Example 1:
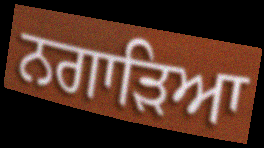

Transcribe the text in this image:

ਨਗਾੜਿਆ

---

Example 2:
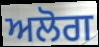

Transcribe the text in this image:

ਅਲੋਗ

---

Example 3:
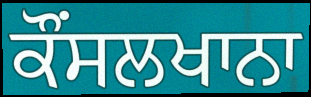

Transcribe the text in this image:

ਕੌਂਸਲਖਾਨਾ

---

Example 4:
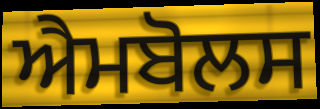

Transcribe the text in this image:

ਐਮਬੋਲਸ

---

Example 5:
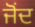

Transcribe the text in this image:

ਜੋਂਦ